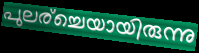
പുലര്ച്ചെയായിരുന്നു